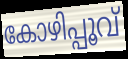
കോഴിപ്പൂവ്